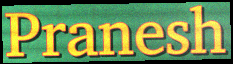
Pranesh